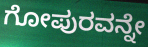
ಗೋಪುರವನ್ನೇ